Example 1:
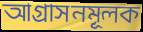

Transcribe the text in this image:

আগ্রাসনমূলক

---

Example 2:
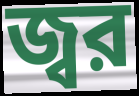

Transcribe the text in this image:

জ্বর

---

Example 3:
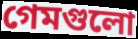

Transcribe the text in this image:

গেমগুলো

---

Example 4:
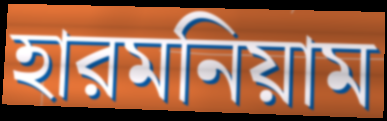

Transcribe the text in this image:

হারমনিয়াম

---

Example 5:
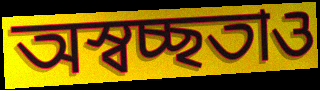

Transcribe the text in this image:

অস্বচ্ছতাও